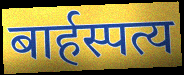
बार्हस्पत्य